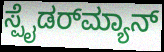
ಸ್ಪೈಡರ್‌ಮ್ಯಾನ್